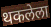
थकलेला